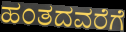
ಹಂತದವರೆಗೆ